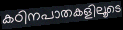
കഠിനപാതകളിലൂടെ